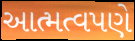
આત્મત્વપણે